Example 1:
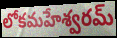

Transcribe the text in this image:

లోకమహేశ్వరమ్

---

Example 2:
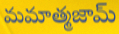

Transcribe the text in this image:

మమాత్మజామ్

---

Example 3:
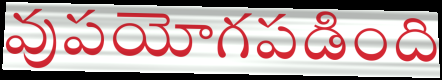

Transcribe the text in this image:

వుపయోగపడింది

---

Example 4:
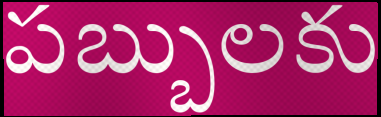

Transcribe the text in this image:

పబ్బులకు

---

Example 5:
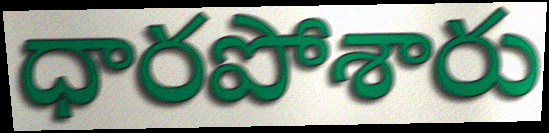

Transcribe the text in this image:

ధారపోశారు